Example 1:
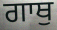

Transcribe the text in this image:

ਗਾਥੁ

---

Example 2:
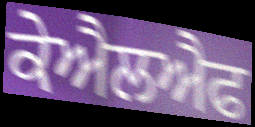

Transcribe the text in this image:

ਕੇਐਲਐਫ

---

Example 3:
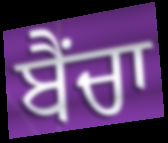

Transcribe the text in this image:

ਬੈਂਚਾ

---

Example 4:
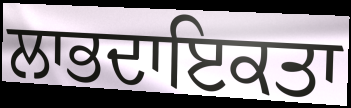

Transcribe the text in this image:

ਲਾਭਦਾਇਕਤਾ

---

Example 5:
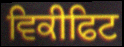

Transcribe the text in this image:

ਵਿਕੀਫਿਟ